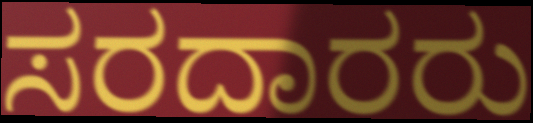
ಸರದಾರರು